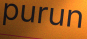
purun